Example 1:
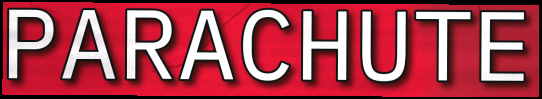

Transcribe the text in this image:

PARACHUTE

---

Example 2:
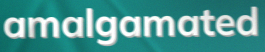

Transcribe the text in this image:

amalgamated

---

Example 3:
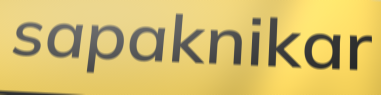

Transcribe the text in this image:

sapaknikar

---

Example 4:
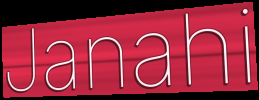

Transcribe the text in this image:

Janahi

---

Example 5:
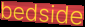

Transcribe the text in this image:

bedside